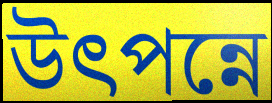
উৎপন্নে